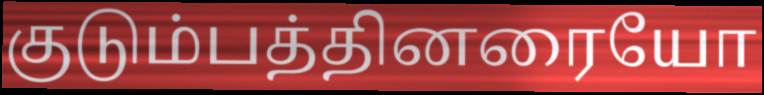
குடும்பத்தினரையோ